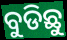
ବୁଡିଛୁ